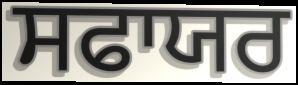
ਸਫਾਯਰ